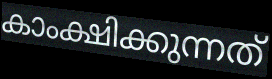
കാംക്ഷിക്കുന്നത്